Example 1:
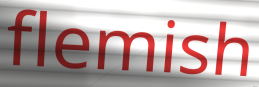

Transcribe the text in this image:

flemish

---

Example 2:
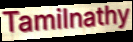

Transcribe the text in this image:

Tamilnathy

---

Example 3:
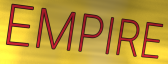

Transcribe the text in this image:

EMPIRE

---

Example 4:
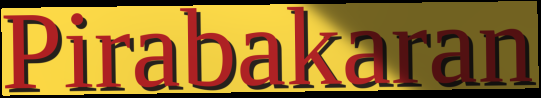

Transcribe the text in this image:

Pirabakaran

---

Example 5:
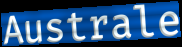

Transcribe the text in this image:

Australe